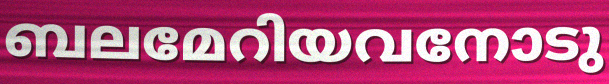
ബലമേറിയവനോടു